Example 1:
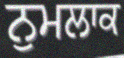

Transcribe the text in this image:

ਨੁਮਲਾਕ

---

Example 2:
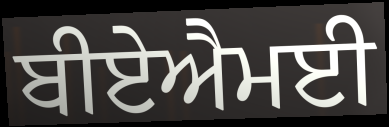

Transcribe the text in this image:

ਬੀਏਐਮਈ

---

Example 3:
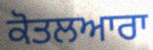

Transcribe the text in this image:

ਕੋਤਲਆਰਾ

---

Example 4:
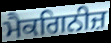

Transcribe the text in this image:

ਮੈਕਗਿਨੀਜ਼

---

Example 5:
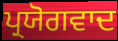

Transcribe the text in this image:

ਪ੍ਰਯੋਗਵਾਦ